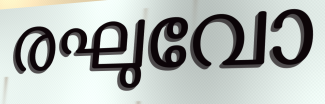
രഘുവോ